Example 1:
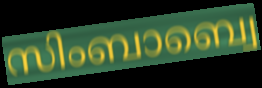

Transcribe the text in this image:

സിംബാബ്വെ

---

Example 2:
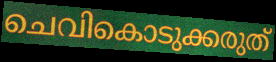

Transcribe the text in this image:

ചെവികൊടുക്കരുത്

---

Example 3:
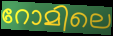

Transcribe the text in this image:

റോമിലെ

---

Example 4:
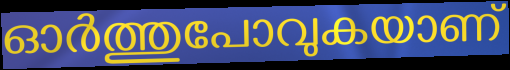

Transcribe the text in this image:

ഓർത്തുപോവുകയാണ്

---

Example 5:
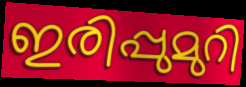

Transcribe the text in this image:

ഇരിപ്പുമുറി